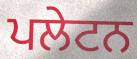
ਪਲੇਟਨ